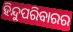
ହିନ୍ଦୁପରିବାରର